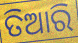
ତିଆରି